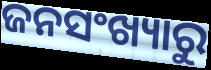
ଜନସଂଖ୍ୟାରୁ